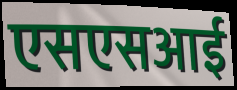
एसएसआई